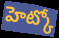
హెట్కో